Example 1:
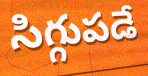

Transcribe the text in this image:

సిగ్గుపడే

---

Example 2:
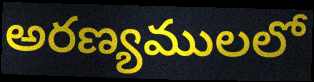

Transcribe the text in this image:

అరణ్యములలో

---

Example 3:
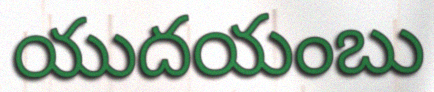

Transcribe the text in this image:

యుదయంబు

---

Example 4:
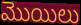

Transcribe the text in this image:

మొయిలు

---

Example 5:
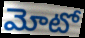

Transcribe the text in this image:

మోటో